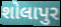
શોલાપુર